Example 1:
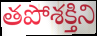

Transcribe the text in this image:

తపోశక్తిని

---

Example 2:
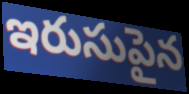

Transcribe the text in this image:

ఇరుసుపైన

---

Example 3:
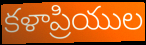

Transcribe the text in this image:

కళాప్రియుల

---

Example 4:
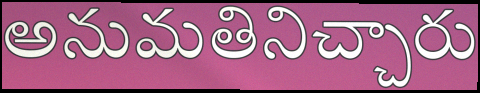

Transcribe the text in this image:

అనుమతినిచ్చారు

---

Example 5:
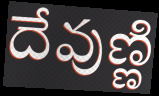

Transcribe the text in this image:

దేవుణ్ణి